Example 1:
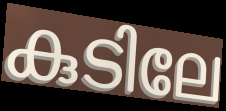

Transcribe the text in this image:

കുടിലേ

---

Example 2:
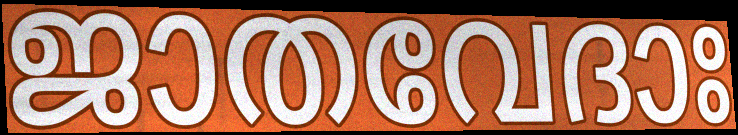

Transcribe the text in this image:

ജാതവേദാഃ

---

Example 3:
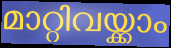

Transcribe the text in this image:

മാറ്റിവയ്ക്കാം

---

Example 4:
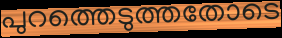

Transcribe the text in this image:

പുറത്തെടുത്തതോടെ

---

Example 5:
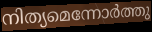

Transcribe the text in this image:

നിത്യമെന്നോർത്തു